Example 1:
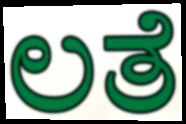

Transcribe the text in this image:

ಲತೆ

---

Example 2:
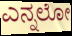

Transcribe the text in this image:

ಎನ್ನಲೋ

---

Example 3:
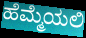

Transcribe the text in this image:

ಹೆಮ್ಮೆಯಲಿ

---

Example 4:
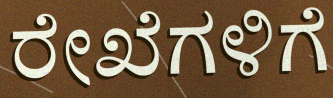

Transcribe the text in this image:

ರೇಖೆಗಳಿಗೆ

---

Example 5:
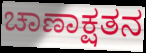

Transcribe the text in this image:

ಚಾಣಾಕ್ಷತನ